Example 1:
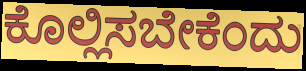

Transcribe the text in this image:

ಕೊಲ್ಲಿಸಬೇಕೆಂದು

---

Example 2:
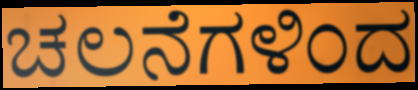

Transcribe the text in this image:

ಚಲನೆಗಳಿಂದ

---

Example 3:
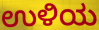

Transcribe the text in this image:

ಉಳಿಯ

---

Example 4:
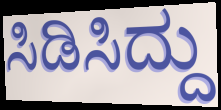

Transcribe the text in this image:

ಸಿಡಿಸಿದ್ದು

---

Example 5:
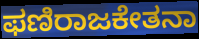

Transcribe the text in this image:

ಫಣಿರಾಜಕೇತನಾ